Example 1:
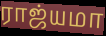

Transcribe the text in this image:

ராஜ்யமா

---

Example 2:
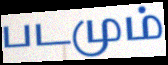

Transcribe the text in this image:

படமும்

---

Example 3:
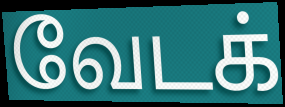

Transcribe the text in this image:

வேடக்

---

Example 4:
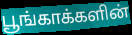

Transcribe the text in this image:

பூங்காக்களின்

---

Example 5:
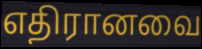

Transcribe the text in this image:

எதிரானவை